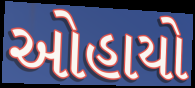
ઓહાયો